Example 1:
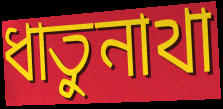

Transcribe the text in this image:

ধাতুনাথা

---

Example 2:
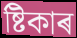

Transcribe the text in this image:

ষ্টিকাৰ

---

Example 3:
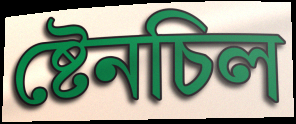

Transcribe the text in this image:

ষ্টেনচিল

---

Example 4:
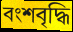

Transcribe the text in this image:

বংশবৃদ্ধি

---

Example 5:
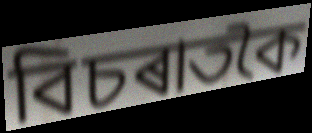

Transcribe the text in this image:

বিচৰাতকৈ